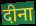
दीना